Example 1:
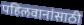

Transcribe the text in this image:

पहिलवानांसाठी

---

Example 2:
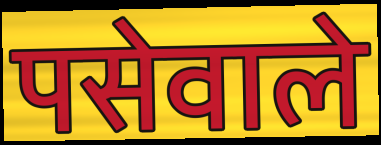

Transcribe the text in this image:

पसेवाले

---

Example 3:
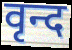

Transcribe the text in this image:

वृन्द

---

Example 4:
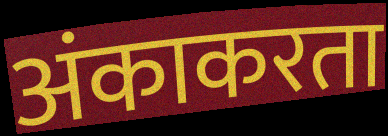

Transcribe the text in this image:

अंकाकरता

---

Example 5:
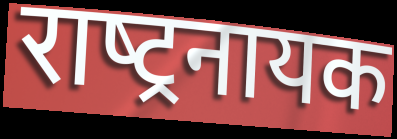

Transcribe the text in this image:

राष्ट्रनायक